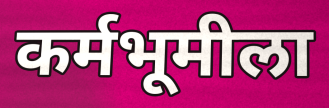
कर्मभूमीला